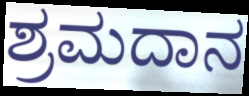
ಶ್ರಮದಾನ